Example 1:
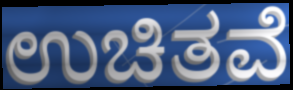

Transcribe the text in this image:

ಉಚಿತವೆ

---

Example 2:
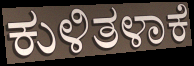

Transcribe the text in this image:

ಕುಳಿತಳಾಕೆ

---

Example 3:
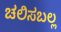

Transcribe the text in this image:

ಚಲಿಸಬಲ್ಲ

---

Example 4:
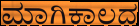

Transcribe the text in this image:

ಮಾಗಿಕಾಲದ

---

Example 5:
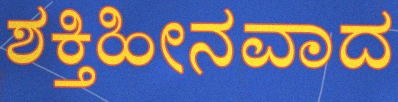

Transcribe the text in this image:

ಶಕ್ತಿಹೀನವಾದ